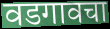
वडगावचा